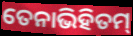
ତେନାଭିହିତମ୍